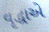
વૃદ્ધાએ